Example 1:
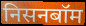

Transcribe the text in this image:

निसनबॉम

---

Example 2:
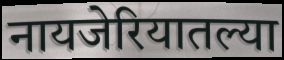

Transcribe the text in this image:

नायजेरियातल्या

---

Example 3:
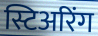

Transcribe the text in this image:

स्टिअरिंग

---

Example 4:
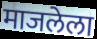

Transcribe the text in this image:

माजलेला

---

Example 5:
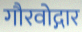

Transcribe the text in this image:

गौरवोद्गार